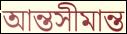
আন্তসীমান্ত